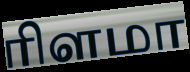
ரிளமா